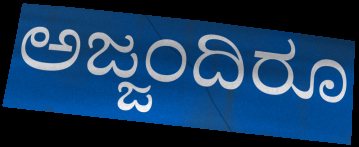
ಅಜ್ಜಂದಿರೂ